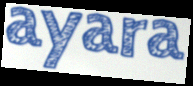
ayara